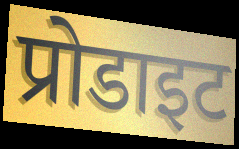
प्रोडाइट